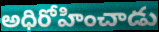
అధిరోహించాడు